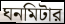
ঘনমিটার